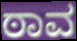
ಠಾವ